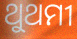
ଥୁଥମୀ